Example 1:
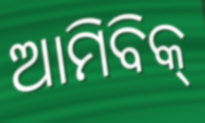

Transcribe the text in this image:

ଆମିବିକ୍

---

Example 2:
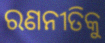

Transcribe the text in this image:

ରଣନୀତିକୁ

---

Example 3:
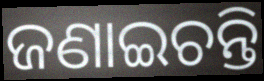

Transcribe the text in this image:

ଜଣାଇଚନ୍ତି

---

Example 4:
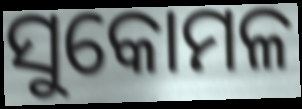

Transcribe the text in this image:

ସୁକୋମଳ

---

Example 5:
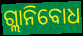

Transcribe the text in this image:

ଗ୍ଲାନିବୋଧ